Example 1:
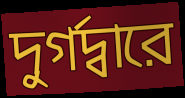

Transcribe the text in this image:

দুর্গদ্বারে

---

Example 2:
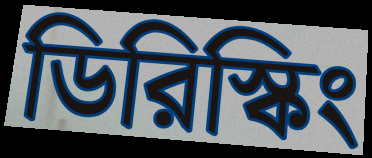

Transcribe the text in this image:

ডিরিস্কিং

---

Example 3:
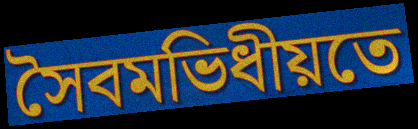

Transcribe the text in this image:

সৈবমভিধীয়তে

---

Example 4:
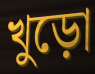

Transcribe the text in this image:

খুড়ো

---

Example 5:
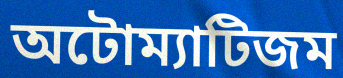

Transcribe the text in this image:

অটোম্যাটিজম